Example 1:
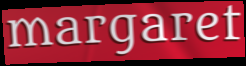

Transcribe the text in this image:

margaret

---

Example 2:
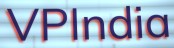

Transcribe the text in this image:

VPIndia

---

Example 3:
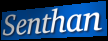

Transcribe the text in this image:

Senthan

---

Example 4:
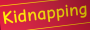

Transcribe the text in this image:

Kidnapping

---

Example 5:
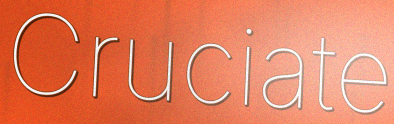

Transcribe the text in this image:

Cruciate